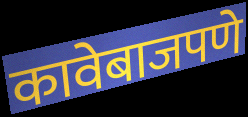
कावेबाजपणे